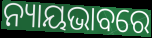
ନ୍ୟାୟଭାବରେ